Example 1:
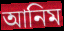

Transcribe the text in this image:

আনিম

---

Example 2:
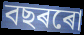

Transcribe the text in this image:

বছৰৰো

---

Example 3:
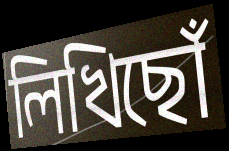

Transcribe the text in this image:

লিখিছোঁ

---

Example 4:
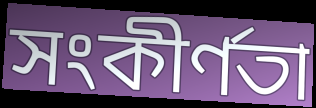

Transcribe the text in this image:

সংকীৰ্ণতা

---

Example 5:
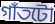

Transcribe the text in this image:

গাঁতটো